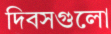
দিবসগুলো